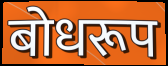
बोधरूप